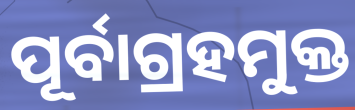
ପୂର୍ବାଗ୍ରହମୁକ୍ତ